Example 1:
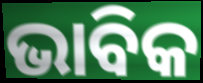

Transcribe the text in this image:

ଭାବିକ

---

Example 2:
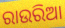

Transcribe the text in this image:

ରାଉରିଆ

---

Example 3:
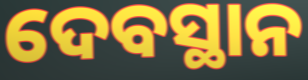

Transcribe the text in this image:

ଦେବସ୍ଥାନ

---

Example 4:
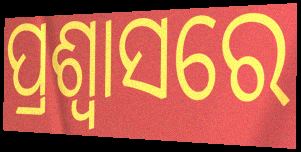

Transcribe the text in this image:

ପ୍ରଶ୍ବାସରେ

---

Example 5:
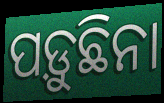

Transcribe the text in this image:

ପଡ଼ୁଛିନା